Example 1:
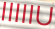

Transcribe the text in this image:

IIIIIU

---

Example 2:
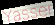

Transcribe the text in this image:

Yasser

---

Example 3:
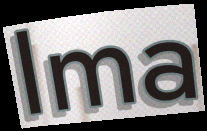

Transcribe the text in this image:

Ima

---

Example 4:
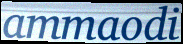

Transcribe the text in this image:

ammaodi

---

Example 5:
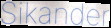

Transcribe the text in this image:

Sikander